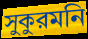
সুকুরমনি